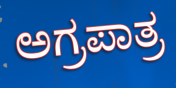
ಅಗ್ರಪಾತ್ರ